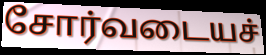
சோர்வடையச்